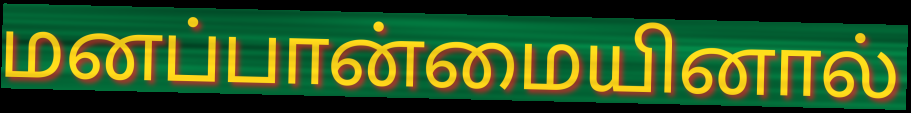
மனப்பான்மையினால்